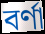
বর্ণা